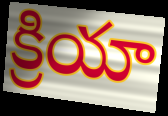
క్రియా